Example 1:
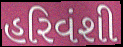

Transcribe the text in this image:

હરિવંશી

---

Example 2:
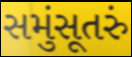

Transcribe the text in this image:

સમુંસૂતરું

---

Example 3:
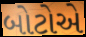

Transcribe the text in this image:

બોટોએ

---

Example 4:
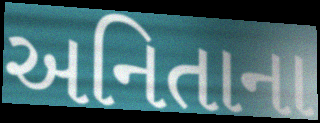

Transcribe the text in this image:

અનિતાના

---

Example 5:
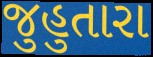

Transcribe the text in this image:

જુહુતારા